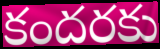
కందరకు